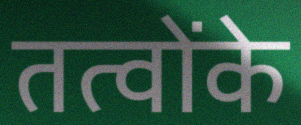
तत्वोंके